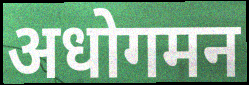
अधोगमन